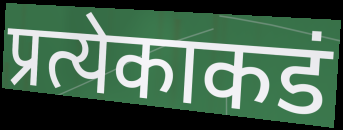
प्रत्येकाकडं